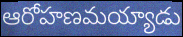
ఆరోహణమయ్యాడు